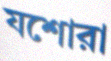
যশোরা